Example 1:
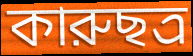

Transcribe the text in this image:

কারুছত্র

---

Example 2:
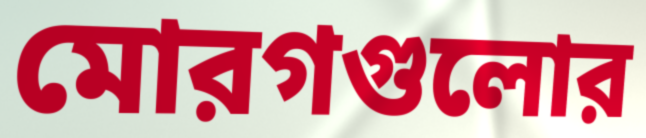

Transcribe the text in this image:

মোরগগুলোর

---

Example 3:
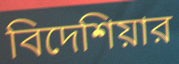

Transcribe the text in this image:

বিদেশিয়ার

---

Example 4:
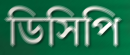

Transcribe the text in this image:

ডিসিপি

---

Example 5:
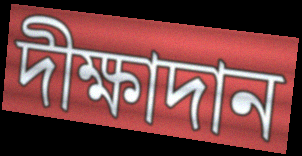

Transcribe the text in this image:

দীক্ষাদান